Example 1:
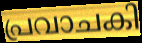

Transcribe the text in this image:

പ്രവാചകി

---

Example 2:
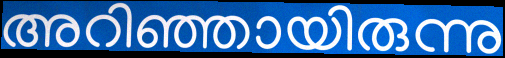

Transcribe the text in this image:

അറിഞ്ഞായിരുന്നു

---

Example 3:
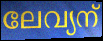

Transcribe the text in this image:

ലേവ്യന്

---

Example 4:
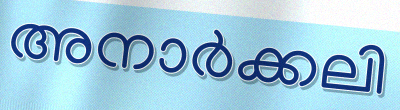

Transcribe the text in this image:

അനാർക്കലി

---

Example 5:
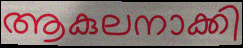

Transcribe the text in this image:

ആകുലനാക്കി